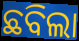
ଛବିଲା